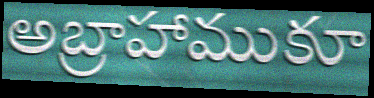
అబ్రాహాముకూ